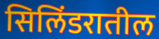
सिलिंडरातील